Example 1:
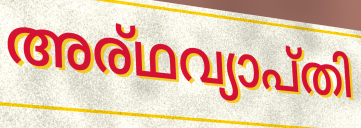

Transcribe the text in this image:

അര്ഥവ്യാപ്തി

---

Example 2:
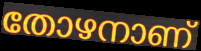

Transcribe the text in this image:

തോഴനാണ്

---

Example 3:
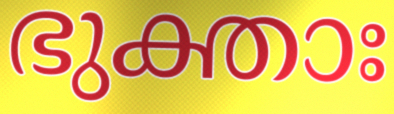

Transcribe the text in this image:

ഭുക്താഃ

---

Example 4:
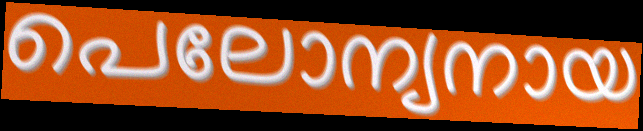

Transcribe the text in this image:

പെലോന്യനായ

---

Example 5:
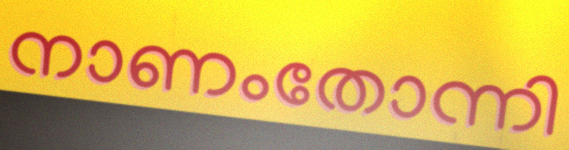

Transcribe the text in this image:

നാണംതോന്നി